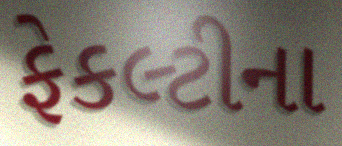
ફેકલ્ટીના